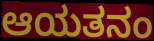
ಆಯತನಂ